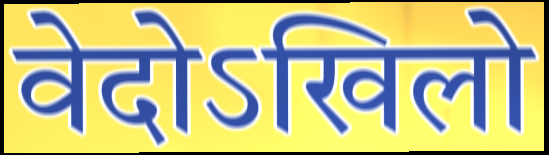
वेदोऽखिलो